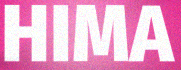
HIMA